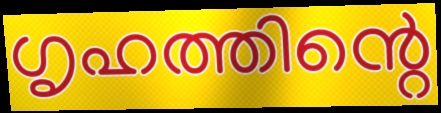
ഗൃഹത്തിന്റെ